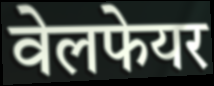
वेलफेयर